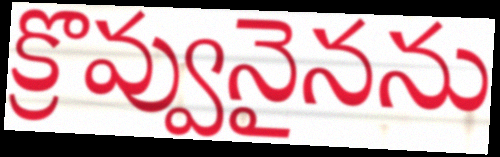
క్రొవ్వునైనను